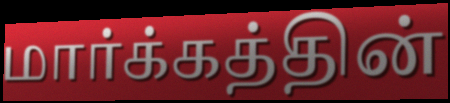
மார்க்கத்தின்